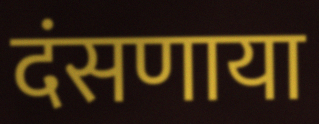
दंसणाया